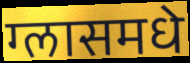
ग्लासमधे